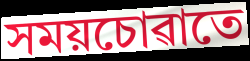
সময়চোৱাতে